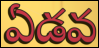
ఏడవ